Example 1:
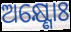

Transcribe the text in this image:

ଅକ୍ଷ୍ଣୋଃ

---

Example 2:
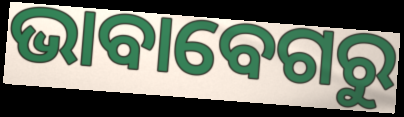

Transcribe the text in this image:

ଭାବାବେଗରୁ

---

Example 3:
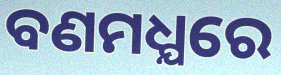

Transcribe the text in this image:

ବଣମଧ୍ଯରେ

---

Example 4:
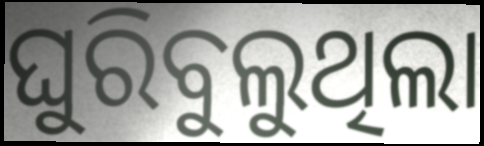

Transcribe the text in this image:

ଘୁରିବୁଲୁଥିଲା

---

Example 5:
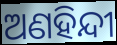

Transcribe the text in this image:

ଅଣହିନ୍ଦୀ